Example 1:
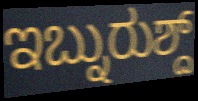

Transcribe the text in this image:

ಇಬ್ನುರುಶ್ದ್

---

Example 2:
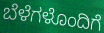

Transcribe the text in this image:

ಬೆಳೆಗಳೊಂದಿಗೆ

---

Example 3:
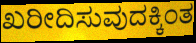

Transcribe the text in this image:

ಖರೀದಿಸುವುದಕ್ಕಿಂತ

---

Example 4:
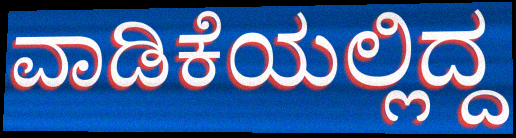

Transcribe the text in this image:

ವಾಡಿಕೆಯಲ್ಲಿದ್ದ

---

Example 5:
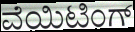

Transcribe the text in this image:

ವೆಯಿಟಿಂಗ್